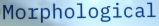
Morphological